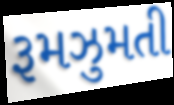
રૂમઝુમતી